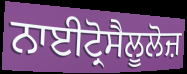
ਨਾਈਟ੍ਰੋਸੈਲੂਲੋਜ਼